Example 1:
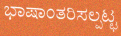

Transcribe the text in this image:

ಭಾಷಾಂತರಿಸಲ್ಪಟ್ಟ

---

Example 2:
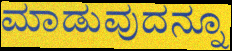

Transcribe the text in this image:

ಮಾಡುವುದನ್ನೂ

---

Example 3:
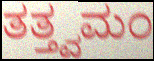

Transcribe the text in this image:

ತತ್ತ್ವಮಂ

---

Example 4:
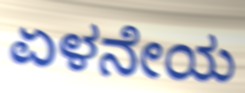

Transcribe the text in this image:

ಏಳನೇಯ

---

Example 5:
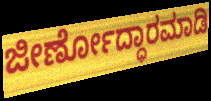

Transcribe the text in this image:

ಜೀರ್ಣೋದ್ಧಾರಮಾಡಿ